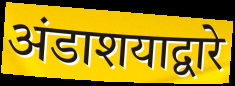
अंडाशयाद्वारे